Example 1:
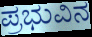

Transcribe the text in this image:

ಪ್ರಭುವಿನ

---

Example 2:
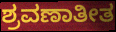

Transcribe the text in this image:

ಶ್ರವಣಾತೀತ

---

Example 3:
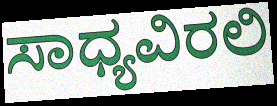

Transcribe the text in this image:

ಸಾಧ್ಯವಿರಲಿ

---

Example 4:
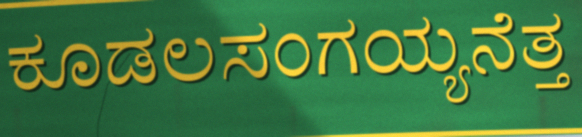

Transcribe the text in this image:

ಕೂಡಲಸಂಗಯ್ಯನೆತ್ತ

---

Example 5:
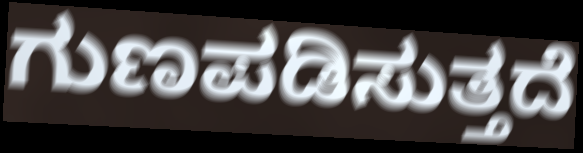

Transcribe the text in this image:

ಗುಣಪಡಿಸುತ್ತದೆ